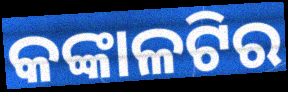
କଙ୍କାଳଟିର